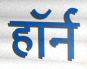
हॉर्न